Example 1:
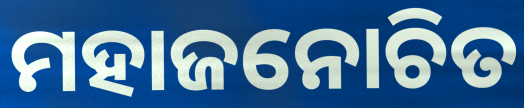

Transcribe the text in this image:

ମହାଜନୋଚିତ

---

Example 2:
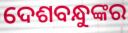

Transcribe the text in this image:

ଦେଶବନ୍ଧୁଙ୍କର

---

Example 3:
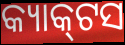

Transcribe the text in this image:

କ୍ୟାକ୍‌ଟସ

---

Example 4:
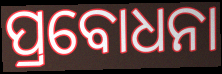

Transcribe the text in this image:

ପ୍ରବୋଧନା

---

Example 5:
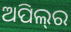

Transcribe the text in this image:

ଅପିଲ୍‍ର